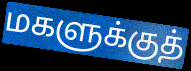
மகளுக்குத்